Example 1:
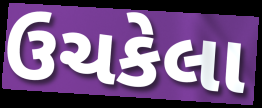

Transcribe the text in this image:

ઉચકેલા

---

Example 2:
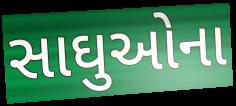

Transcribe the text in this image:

સાઘુઓના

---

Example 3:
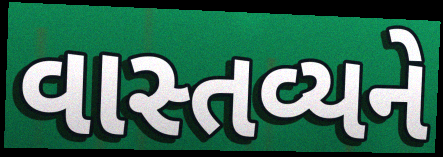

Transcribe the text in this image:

વાસ્તવ્યને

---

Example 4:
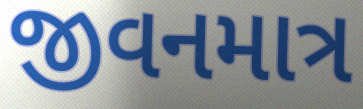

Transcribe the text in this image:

જીવનમાત્ર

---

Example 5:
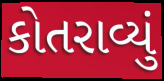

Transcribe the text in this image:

કોતરાવ્યું